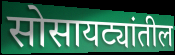
सोसायट्यांतील